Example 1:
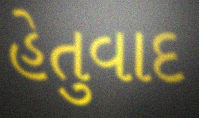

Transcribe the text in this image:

હેતુવાદ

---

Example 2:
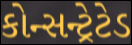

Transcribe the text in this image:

કોન્સન્ટ્રેટેડ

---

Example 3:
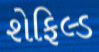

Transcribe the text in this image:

શેફિલ્ડ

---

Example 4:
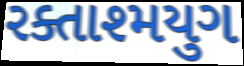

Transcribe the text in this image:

રક્તાશ્મયુગ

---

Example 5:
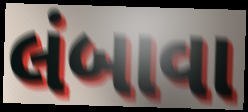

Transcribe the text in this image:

લંબાવા